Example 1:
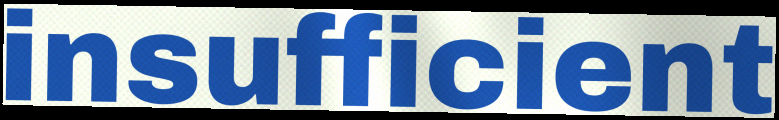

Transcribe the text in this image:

insufficient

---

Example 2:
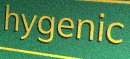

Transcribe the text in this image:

hygenic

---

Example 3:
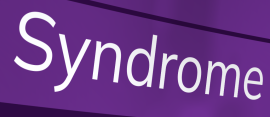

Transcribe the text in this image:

Syndrome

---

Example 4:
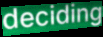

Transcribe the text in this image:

deciding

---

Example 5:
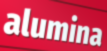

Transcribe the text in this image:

alumina